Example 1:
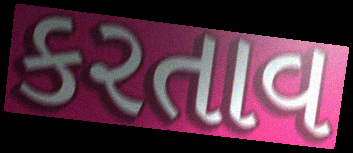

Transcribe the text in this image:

કરતાવ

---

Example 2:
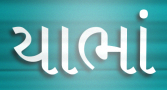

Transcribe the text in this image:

યાભાં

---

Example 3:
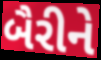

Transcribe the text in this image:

બૈરીને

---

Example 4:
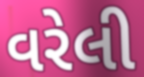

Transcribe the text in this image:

વરેલી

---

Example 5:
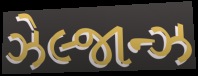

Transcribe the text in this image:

ઝેલ્જાન્ઝ